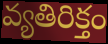
వ్యతిరిక్తం